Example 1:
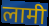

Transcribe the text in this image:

लामी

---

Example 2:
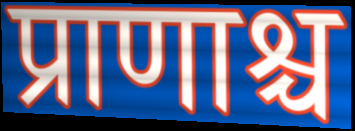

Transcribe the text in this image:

प्राणाश्च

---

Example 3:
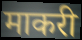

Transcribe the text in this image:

माकरी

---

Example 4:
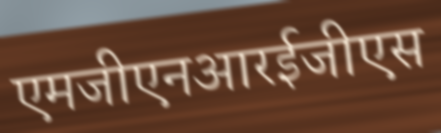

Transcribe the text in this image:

एमजीएनआरईजीएस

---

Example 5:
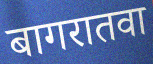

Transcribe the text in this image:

बागरातवा